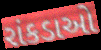
રાંકડાઓ